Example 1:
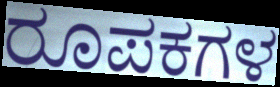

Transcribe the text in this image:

ರೂಪಕಗಳ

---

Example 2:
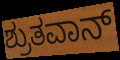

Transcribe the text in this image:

ಶ್ರುತವಾನ್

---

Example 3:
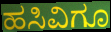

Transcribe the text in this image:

ಹಸಿವಿಗೂ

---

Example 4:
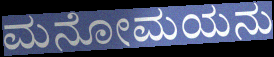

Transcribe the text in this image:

ಮನೋಮಯನು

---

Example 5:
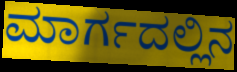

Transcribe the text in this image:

ಮಾರ್ಗದಲ್ಲಿನ